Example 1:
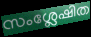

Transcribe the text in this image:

സംശ്ലേഷിത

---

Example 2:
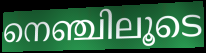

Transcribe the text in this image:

നെഞ്ചിലൂടെ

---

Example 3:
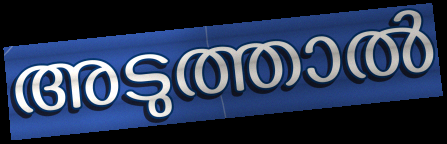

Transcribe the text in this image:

അടുത്താൽ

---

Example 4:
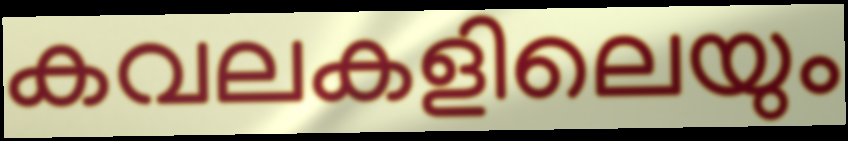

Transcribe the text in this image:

കവലകളിലെയും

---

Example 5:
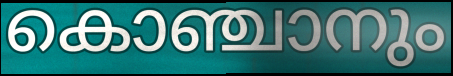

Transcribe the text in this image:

കൊഞ്ചാനും